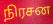
நிரசன